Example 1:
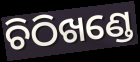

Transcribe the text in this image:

ଚିଠିଖଣ୍ଡେ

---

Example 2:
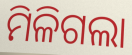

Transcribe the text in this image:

ମିଳିଗଲା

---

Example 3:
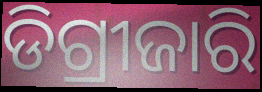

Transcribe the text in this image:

ଡିଗ୍ରୀଜାରି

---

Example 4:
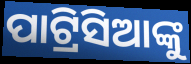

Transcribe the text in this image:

ପାଟ୍ରିସିଆଙ୍କୁ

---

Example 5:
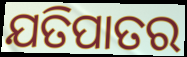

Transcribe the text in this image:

ଯତିପାତର